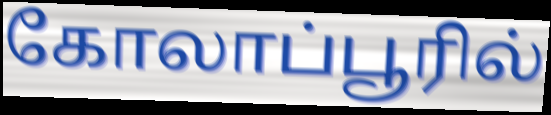
கோலாப்பூரில்